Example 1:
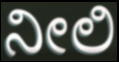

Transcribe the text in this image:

ನೀಲಿ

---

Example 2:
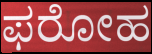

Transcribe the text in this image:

ಫರೋಹ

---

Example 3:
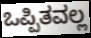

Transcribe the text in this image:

ಒಪ್ಪಿತವಲ್ಲ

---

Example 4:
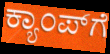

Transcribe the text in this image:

ಕ್ಯಾಂಪ್‍ಗೆ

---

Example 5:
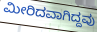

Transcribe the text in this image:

ಮೀರಿದವಾಗಿದ್ದವು